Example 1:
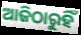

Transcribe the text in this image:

ଆଜିଠାରୁହିଁ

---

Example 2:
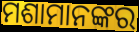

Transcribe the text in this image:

ମଶାମାନଙ୍କର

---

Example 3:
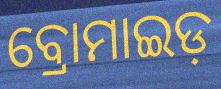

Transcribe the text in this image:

ବ୍ରୋମାଇଡ଼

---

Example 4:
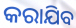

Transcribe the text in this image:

କରାଯିବ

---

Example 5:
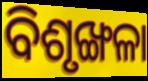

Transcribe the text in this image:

ବିଶୃଙ୍ଖଳା